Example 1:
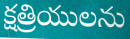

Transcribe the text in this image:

క్షత్రియులను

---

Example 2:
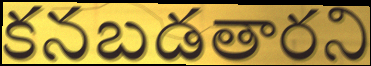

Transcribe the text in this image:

కనబడతారని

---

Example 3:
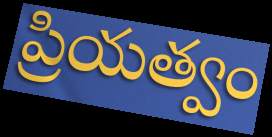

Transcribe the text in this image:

ప్రియత్వం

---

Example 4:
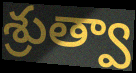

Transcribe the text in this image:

శ్రుత్వా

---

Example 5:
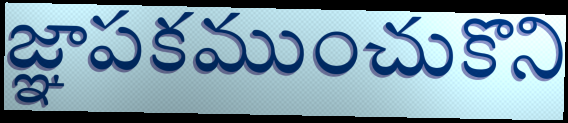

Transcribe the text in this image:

జ్ఞాపకముంచుకొని